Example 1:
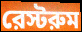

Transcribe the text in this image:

রেস্টরুম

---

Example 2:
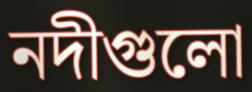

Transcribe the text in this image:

নদীগুলো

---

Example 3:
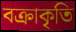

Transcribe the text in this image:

বক্রাকৃতি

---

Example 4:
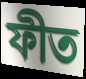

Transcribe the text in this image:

ফীত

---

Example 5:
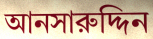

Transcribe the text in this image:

আনসারুদ্দিন